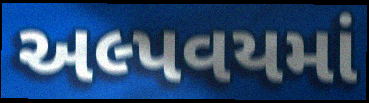
અલ્પવયમાં